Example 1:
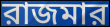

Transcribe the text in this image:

রাজমার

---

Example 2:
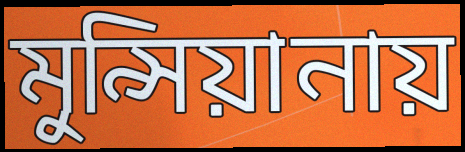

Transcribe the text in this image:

মুন্সিয়ানায়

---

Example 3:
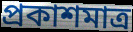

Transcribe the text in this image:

প্রকাশমাত্র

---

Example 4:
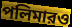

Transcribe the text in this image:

পলিমারও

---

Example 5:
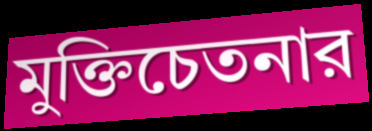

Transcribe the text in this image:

মুক্তিচেতনার